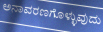
ಅನಾವರಣಗೊಳ್ಳುವುದು